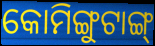
କୋମିଙ୍ଗୁଟାଙ୍ଗ୍